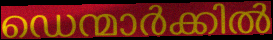
ഡെന്മാർക്കിൽ